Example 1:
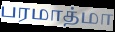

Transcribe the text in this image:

பரமாத்மா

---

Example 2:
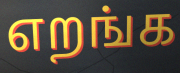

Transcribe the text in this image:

எறங்க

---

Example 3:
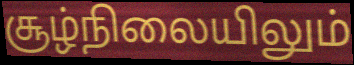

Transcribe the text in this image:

சூழ்நிலையிலும்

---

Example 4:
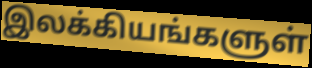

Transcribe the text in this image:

இலக்கியங்களுள்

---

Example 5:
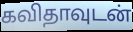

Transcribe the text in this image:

கவிதாவுடன்